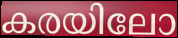
കരയിലോ